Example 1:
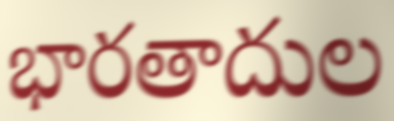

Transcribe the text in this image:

భారతాదుల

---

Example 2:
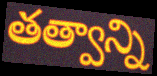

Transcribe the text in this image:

తత్వాన్ని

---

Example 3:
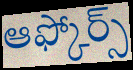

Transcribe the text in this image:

ఆఫ్కోర్స్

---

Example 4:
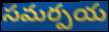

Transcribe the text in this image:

సమర్పయ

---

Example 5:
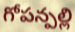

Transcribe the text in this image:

గోపన్పల్లి